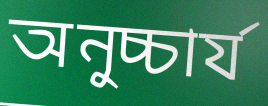
অনুচ্চার্য